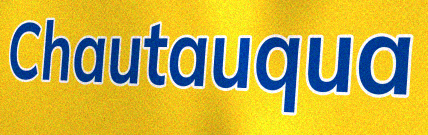
Chautauqua